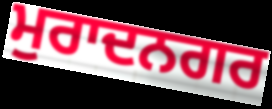
ਮੁਰਾਦਨਗਰ